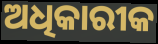
ଅଧିକାରୀକ